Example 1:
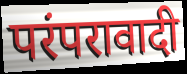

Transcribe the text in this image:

परंपरावादी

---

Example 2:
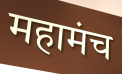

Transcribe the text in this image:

महामंच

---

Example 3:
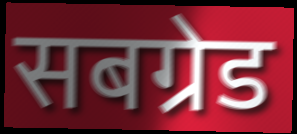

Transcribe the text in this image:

सबग्रेड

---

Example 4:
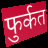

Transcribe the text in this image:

फुर्कत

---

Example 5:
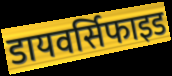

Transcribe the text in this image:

डायवर्सिफाइड